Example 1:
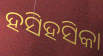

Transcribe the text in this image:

ହସିହସିକା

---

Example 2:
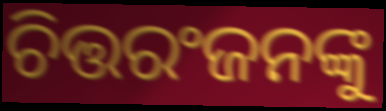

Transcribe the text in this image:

ଚିତ୍ତରଂଜନଙ୍କୁ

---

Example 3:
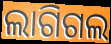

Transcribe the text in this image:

ଲାଗିଗଲ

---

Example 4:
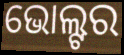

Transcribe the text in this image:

ଭୋଲ୍ଟର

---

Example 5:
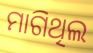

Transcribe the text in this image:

ମାଗିଥିଲ